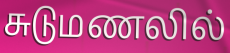
சுடுமணலில்